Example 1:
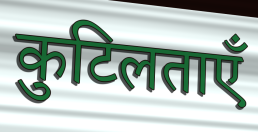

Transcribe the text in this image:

कुटिलताएँ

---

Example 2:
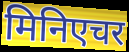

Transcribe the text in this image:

मिनिएचर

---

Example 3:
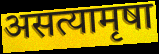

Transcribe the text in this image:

असत्यामृषा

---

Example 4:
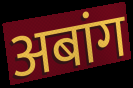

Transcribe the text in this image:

अबांग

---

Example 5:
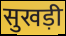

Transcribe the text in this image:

सुखड़ी